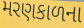
મરણકાળના